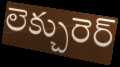
లెక్చురెర్